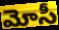
మోసీ